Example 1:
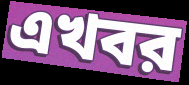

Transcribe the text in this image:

এখবর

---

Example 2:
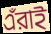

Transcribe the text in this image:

এঁরাই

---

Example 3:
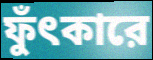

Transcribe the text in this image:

ফুঁৎকারে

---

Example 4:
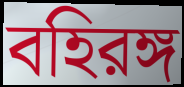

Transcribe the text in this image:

বহিরঙ্গ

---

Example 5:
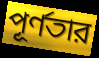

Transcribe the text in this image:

পূর্ণতার